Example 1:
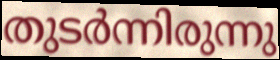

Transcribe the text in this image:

തുടർന്നിരുന്നു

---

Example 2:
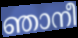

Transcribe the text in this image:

ഞാനീ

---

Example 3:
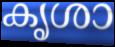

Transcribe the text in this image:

കൃശാ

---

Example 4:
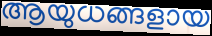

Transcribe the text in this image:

ആയുധങ്ങളായ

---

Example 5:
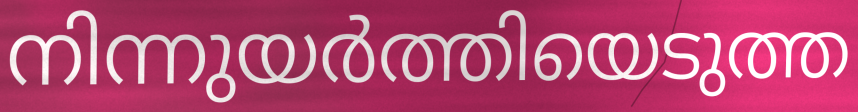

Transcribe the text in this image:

നിന്നുയർത്തിയെടുത്ത